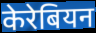
केरेबियन